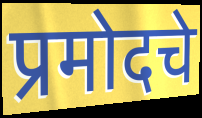
प्रमोदचे